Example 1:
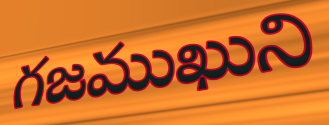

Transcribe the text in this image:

గజముఖుని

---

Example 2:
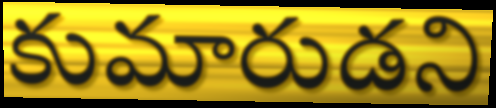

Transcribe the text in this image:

కుమారుడని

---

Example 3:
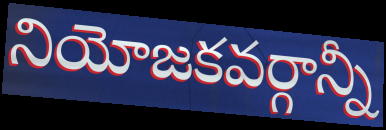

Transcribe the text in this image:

నియోజకవర్గాన్నీ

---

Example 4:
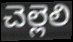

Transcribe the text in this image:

చెల్లెలి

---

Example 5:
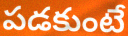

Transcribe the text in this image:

పడకుంటే